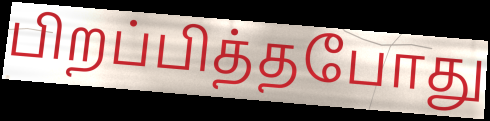
பிறப்பித்தபோது